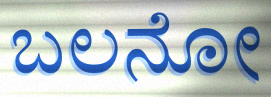
ಬಲನೋ